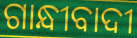
ଗାନ୍ଧୀବାଦୀ